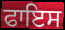
ਫਾਇਸ